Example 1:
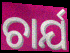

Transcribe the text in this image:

ଚାର୍ଯ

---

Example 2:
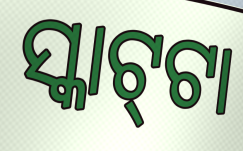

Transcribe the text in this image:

ସ୍କାଟ୍‌ଟା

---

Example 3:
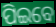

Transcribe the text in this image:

ପିଇବେ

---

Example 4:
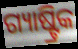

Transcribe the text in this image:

ଗ୍ୟାଷ୍ଟ୍ରିକ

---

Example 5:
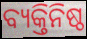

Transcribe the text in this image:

ବ୍ୟକ୍ତିନିଷ୍ଠ